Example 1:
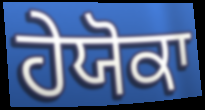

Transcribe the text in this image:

ਹੇਯੋਕਾ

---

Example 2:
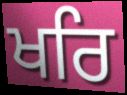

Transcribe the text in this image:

ਖਰਿ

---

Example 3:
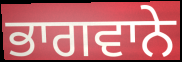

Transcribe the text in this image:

ਭਾਗਵਾਨੇ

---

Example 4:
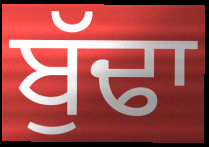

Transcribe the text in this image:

ਬੁੱਢਾ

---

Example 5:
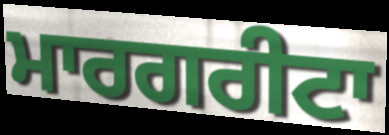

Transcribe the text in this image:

ਮਾਰਗਰੀਟਾ